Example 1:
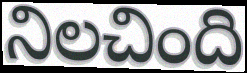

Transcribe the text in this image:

నిలచింది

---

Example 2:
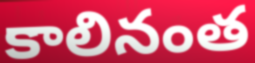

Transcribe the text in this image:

కాలినంత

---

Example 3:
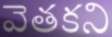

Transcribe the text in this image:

వెతకని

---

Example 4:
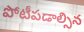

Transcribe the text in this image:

పోటీపడాల్సిన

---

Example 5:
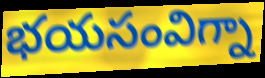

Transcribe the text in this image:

భయసంవిగ్నా